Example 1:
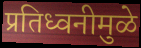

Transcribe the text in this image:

प्रतिध्वनीमुळे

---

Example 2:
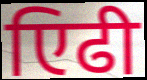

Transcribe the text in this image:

एिढी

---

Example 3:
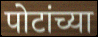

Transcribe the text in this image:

पोटांच्या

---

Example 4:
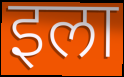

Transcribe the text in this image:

इला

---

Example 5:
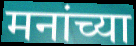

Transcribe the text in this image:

मनांच्या